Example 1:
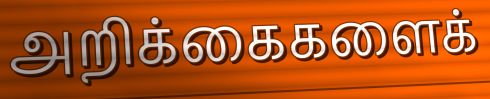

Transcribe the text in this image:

அறிக்கைகளைக்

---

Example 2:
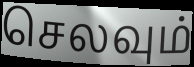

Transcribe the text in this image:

செலவும்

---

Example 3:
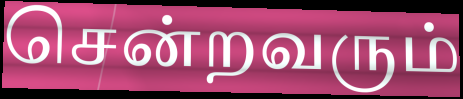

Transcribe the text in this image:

சென்றவரும்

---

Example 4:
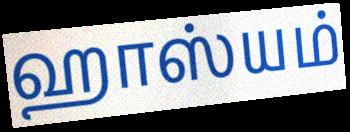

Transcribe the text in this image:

ஹாஸ்யம்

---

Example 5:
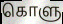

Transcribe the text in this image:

கொளு